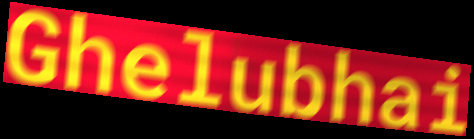
Ghelubhai